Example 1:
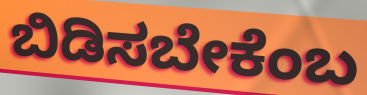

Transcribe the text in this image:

ಬಿಡಿಸಬೇಕೆಂಬ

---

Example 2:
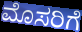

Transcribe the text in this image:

ಮೊಸರಿಗೆ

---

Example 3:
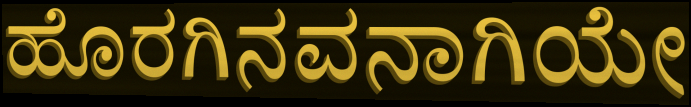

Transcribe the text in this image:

ಹೊರಗಿನವನಾಗಿಯೇ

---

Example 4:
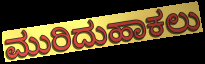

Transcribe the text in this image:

ಮುರಿದುಹಾಕಲು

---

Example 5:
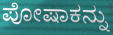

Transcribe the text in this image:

ಪೋಷಾಕನ್ನು